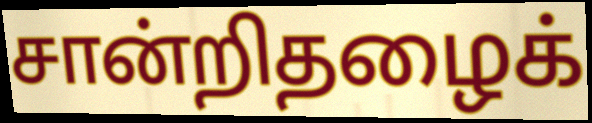
சான்றிதழைக்